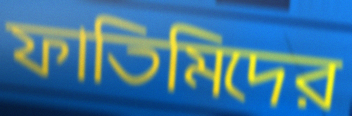
ফাতিমিদের